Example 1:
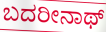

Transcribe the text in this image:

ಬದರೀನಾಥ್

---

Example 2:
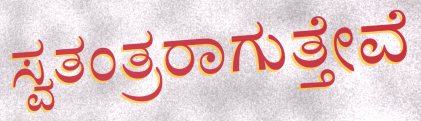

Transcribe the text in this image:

ಸ್ವತಂತ್ರರಾಗುತ್ತೇವೆ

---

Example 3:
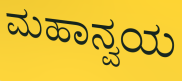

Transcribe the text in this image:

ಮಹಾನ್ವಯ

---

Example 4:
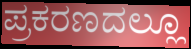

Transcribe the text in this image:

ಪ್ರಕರಣದಲ್ಲೂ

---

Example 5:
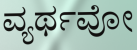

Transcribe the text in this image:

ವ್ಯರ್ಥವೋ